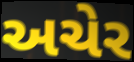
અચેર